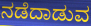
ನಡೆದಾಡುವ